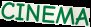
CINEMA